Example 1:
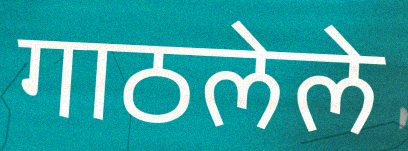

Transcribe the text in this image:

गाठलेले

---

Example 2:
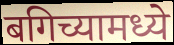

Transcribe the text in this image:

बगिच्यामध्ये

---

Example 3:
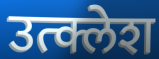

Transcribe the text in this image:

उत्क्लेश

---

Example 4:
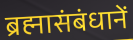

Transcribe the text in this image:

ब्रह्मासंबंधानें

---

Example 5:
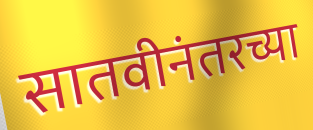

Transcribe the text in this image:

सातवीनंतरच्या